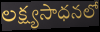
లక్ష్యసాధనలో